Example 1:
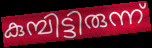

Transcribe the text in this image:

കുമ്പിട്ടിരുന്ന്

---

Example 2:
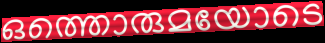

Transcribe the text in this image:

ഒത്തൊരുമയോടെ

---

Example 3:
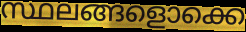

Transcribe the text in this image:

സ്ഥലങ്ങളൊക്കെ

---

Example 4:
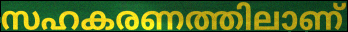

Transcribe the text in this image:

സഹകരണത്തിലാണ്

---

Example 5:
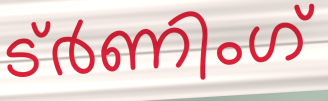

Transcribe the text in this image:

ട്ർണിംഗ്